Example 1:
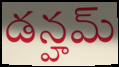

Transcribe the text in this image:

డన్హమ్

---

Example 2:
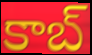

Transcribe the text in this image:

కాబ్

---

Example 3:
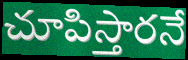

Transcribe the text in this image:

చూపిస్తారనే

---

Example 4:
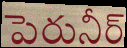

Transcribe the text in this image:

పెరునీర్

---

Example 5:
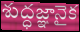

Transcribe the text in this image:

శుద్ధజ్ఞానైక